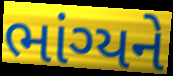
ભાંગ્યને